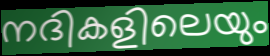
നദികളിലെയും